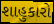
શાહુકારો